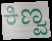
ಕಿಣ್ವ